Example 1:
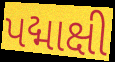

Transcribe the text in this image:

પદ્માક્ષી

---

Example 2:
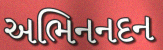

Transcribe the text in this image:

અભિનનદન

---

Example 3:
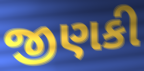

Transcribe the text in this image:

જીણકી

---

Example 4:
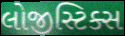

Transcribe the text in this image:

લોજીસ્ટિક્સ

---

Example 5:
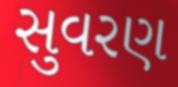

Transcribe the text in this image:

સુવરણ